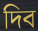
দিব